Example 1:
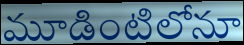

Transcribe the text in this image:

మూడింటిలోనూ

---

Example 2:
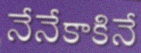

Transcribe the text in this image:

నేనేకాకినే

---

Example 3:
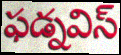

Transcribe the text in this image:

ఫడ్నవిస్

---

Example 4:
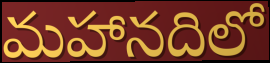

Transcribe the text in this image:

మహానదిలో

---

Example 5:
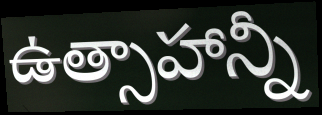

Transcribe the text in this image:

ఉత్సాహాన్నీ